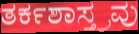
ತರ್ಕಶಾಸ್ತ್ರವು